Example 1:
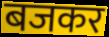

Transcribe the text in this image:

बजकर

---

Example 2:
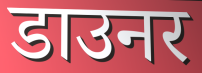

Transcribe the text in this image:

डाउनर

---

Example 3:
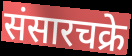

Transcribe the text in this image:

संसारचक्रे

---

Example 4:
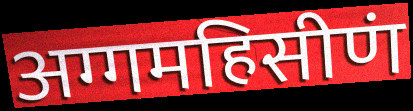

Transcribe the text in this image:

अग्गमहिसीणं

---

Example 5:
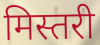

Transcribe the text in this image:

मिस्तरी